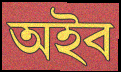
অইব